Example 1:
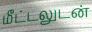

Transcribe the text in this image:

மீட்டலுடன்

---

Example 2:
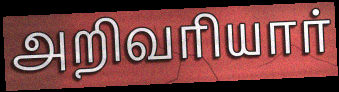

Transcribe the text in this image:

அறிவரியார்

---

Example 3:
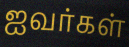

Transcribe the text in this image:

ஐவர்கள்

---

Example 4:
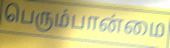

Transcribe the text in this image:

பெரும்பான்மை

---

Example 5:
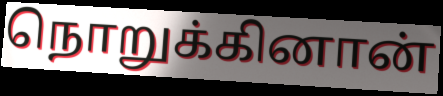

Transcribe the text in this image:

நொறுக்கினான்